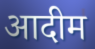
आदीम